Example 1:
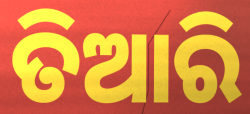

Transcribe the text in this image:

ତିଆରି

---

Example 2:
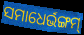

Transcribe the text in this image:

ସମାଧେର୍ଭଙ୍ଗମ୍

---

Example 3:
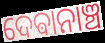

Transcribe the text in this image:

ଦେଵାନାଞ୍ଚ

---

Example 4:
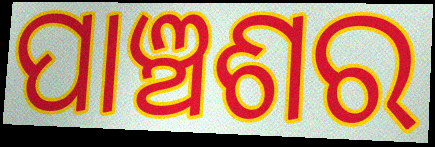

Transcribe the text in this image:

ପାଞ୍ଚଶର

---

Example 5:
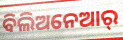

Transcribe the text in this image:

ବିଲିଅନେଆର୍